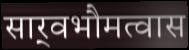
सार्वभौमत्वास